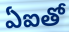
ఏఐతో